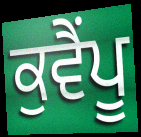
ਕੁਵੈਂਪੂ